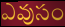
ఎవుసం